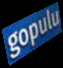
gopulu